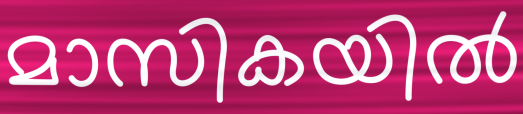
മാസികയിൽ